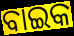
ବାଇକ